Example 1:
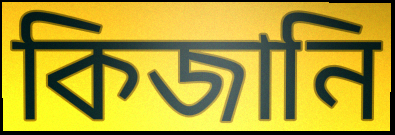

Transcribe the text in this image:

কিজানি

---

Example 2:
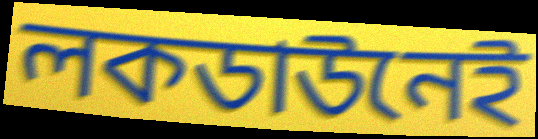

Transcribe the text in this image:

লকডাউনেই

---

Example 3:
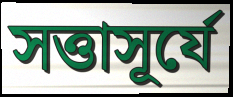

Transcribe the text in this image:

সত্তাসূর্যে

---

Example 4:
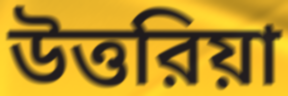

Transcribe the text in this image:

উত্তরিয়া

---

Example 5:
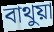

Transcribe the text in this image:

বাথুয়া